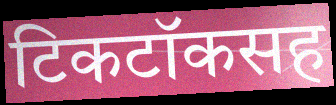
टिकटॉकसह